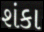
શંકા